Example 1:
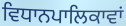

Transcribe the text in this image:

ਵਿਧਾਨਪਾਲਿਕਾਵਾਂ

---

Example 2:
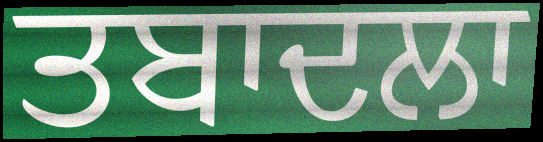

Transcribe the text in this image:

ਤਬਾਦਲਾ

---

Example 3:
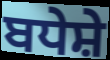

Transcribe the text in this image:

ਬਧੇਸ਼ੇ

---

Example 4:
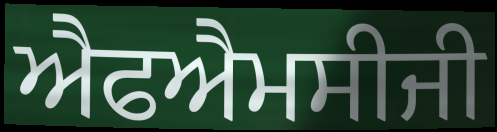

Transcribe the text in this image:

ਐਫਐਮਸੀਜੀ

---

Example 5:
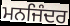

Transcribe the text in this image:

ਮਨਜਿੰਦਰ